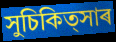
সুচিকিত্সাৰ